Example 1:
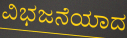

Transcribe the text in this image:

ವಿಭಜನೆಯಾದ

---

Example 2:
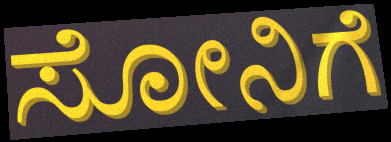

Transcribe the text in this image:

ಸೋನಿಗೆ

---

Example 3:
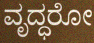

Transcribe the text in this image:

ವೃದ್ಧರೋ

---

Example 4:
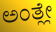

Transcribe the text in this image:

ಅಂತ್ಲೇ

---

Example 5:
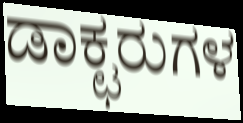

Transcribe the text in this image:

ಡಾಕ್ಟರುಗಳ